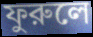
ফুরুলে